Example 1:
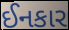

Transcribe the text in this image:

ઈનકાર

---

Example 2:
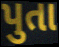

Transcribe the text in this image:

પુતા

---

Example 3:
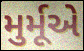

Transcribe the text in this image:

મુર્મૂએ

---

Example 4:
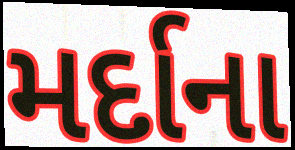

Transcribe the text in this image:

મર્દાના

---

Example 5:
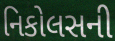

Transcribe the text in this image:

નિકોલસની